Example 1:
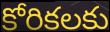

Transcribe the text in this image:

కోరికలకు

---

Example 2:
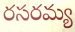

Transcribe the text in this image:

రసరమ్య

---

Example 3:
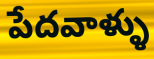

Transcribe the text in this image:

పేదవాళ్ళు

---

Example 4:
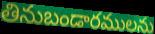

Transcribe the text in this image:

తినుబండారములను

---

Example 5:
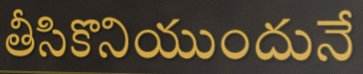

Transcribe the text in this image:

తీసికొనియుందునే